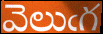
వెలుఁగ